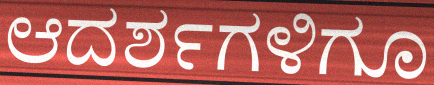
ಆದರ್ಶಗಳಿಗೂ